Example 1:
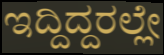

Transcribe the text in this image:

ಇದ್ದಿದ್ದರಲ್ಲೇ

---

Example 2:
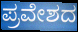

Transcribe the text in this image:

ಪ್ರವೇಶದ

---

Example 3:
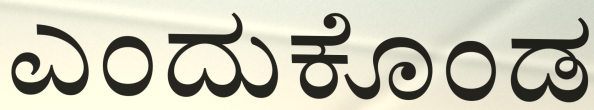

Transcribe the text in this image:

ಎಂದುಕೊಂಡ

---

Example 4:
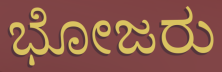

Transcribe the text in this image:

ಭೋಜರು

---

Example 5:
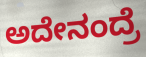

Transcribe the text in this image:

ಅದೇನಂದ್ರೆ